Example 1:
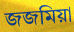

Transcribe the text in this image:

জজমিয়া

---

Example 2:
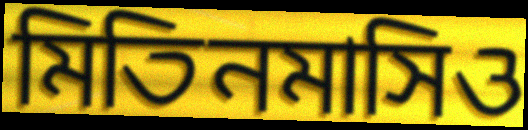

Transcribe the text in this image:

মিতিনমাসিও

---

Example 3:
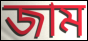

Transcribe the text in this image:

জাম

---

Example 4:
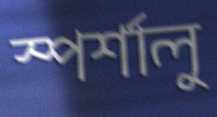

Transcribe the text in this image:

স্পর্শালু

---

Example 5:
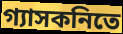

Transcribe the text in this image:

গ্যাসকনিতে